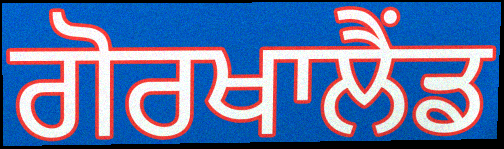
ਗੋਰਖਾਲੈਂਡ